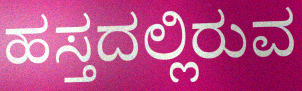
ಹಸ್ತದಲ್ಲಿರುವ